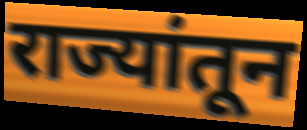
राज्यांतून